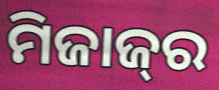
ମିଜାଜ୍‌ର